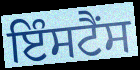
ਇੰਸਟੈਂਸ